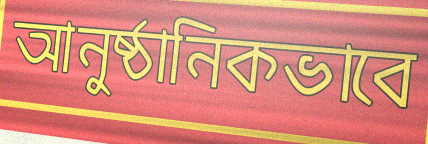
আনুষ্ঠানিকভাবে